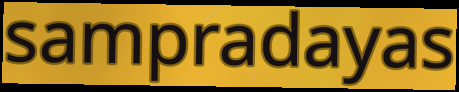
sampradayas